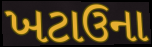
ખટાઉના